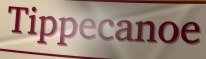
Tippecanoe